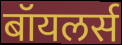
बॉयलर्स